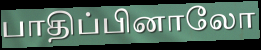
பாதிப்பினாலோ